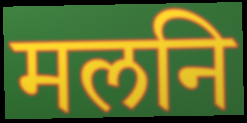
मलनि